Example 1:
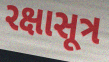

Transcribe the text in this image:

રક્ષાસૂત્ર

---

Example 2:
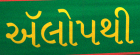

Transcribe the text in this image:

ઍલોપથી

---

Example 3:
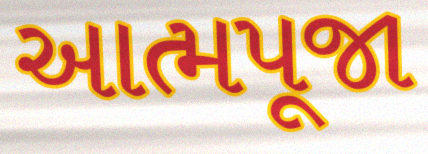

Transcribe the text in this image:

આત્મપૂજા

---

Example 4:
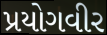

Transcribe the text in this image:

પ્રયોગવીર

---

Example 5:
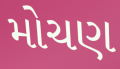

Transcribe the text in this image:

મોચણ